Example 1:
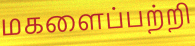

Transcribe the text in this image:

மகளைப்பற்றி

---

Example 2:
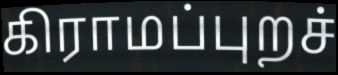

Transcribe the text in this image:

கிராமப்புறச்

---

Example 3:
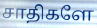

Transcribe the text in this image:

சாதிகளே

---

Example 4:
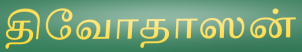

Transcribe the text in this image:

திவோதாஸன்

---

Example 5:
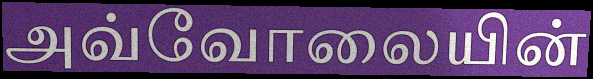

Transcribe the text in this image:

அவ்வோலையின்